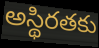
అస్థిరతకు